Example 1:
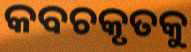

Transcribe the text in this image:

କବଚକୃତକୁ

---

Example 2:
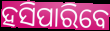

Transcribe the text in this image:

ହସିପାରିବେ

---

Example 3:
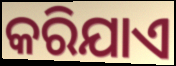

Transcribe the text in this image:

କରିଯାଏ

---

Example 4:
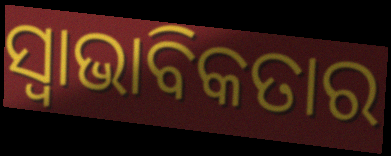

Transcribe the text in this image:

ସ୍ଵାଭାବିକତାର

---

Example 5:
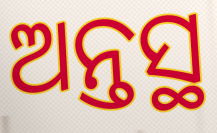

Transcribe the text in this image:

ଅନ୍ତସ୍ଥ